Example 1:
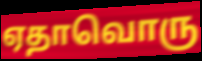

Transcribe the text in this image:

ஏதாவொரு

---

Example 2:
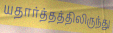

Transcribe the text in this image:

யதார்த்தத்திலிருந்து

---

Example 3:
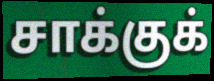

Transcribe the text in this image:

சாக்குக்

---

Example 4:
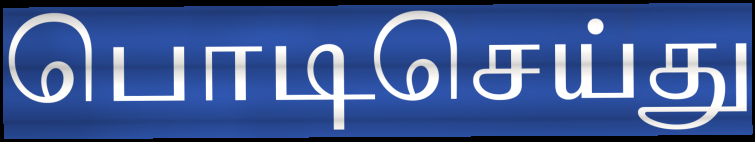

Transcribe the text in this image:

பொடிசெய்து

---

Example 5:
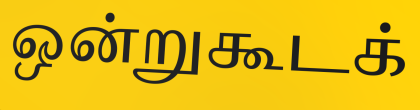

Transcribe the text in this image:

ஒன்றுகூடக்